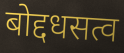
बोद्दधसत्व